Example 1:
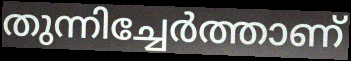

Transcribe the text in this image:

തുന്നിച്ചേർത്താണ്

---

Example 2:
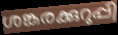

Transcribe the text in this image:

ശങ്കരക്കുറുപ്പി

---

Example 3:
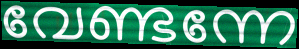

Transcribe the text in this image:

വേണ്ടന്നേ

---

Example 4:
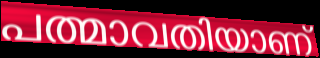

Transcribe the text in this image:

പത്മാവതിയാണ്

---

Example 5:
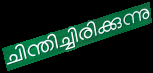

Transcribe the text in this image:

ചിന്തിച്ചിരിക്കുന്നു